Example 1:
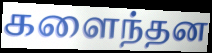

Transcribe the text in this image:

களைந்தன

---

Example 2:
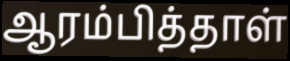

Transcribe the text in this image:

ஆரம்பித்தாள்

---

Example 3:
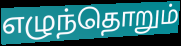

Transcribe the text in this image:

எழுந்தொறும்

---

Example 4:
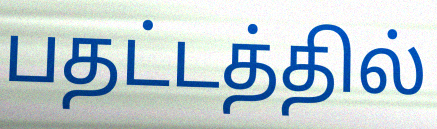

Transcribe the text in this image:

பதட்டத்தில்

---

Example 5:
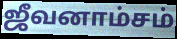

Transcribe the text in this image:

ஜீவனாம்சம்